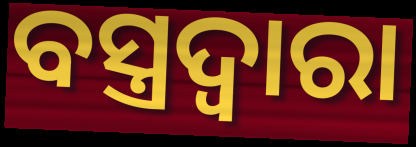
ବସ୍ତ୍ରଦ୍ୱାରା